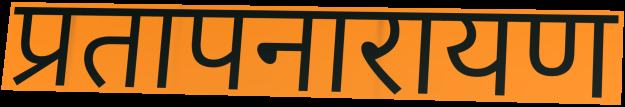
प्रतापनारायण